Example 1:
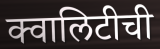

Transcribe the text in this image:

क्वालिटीची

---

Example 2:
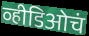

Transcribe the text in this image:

व्हीडिओचं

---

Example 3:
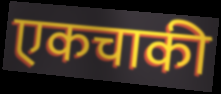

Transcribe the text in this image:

एकचाकी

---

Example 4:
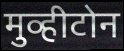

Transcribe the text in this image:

मुव्हीटोन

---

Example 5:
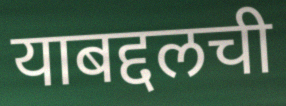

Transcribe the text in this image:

याबद्दलची